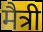
मैत्री